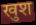
खुश